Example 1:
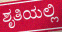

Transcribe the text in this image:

ಶೃತಿಯಲ್ಲಿ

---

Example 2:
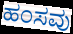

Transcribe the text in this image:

ಹಂಸವು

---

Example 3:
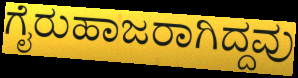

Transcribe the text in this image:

ಗೈರುಹಾಜರಾಗಿದ್ದವು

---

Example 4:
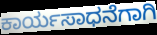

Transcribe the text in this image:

ಕಾರ್ಯಸಾಧನೆಗಾಗಿ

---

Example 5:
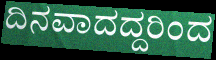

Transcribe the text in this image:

ದಿನವಾದದ್ದರಿಂದ